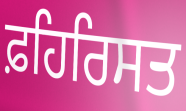
ਫ਼ਹਿਰਿਸਤ